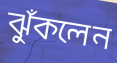
ঝুঁকলেন